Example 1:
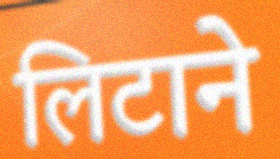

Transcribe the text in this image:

लिटाने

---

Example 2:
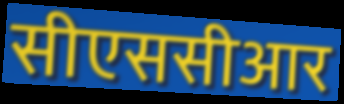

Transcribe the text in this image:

सीएससीआर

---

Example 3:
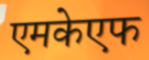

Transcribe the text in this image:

एमकेएफ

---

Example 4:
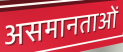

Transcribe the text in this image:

असमानताओं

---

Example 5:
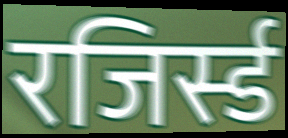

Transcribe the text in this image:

रजिर्स्ड